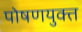
पोषणयुक्त